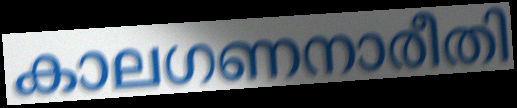
കാലഗണനാരീതി